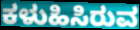
ಕಳುಹಿಸಿರುವ